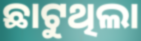
ଛାଟୁଥିଲା